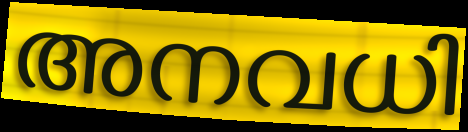
അനവധി